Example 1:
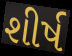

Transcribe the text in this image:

શીર્ષ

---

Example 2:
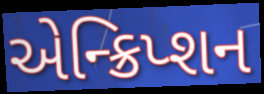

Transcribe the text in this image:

એન્ક્રિપ્શન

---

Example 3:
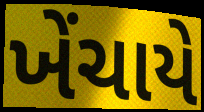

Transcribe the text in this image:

ખેંચાયે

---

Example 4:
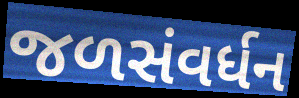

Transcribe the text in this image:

જળસંવર્ધન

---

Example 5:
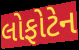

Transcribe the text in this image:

લોફોટેન